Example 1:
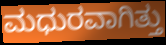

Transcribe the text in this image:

ಮಧುರವಾಗಿತ್ತು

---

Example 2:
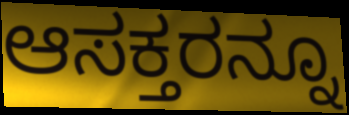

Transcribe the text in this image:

ಆಸಕ್ತರನ್ನೂ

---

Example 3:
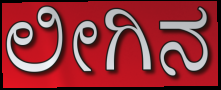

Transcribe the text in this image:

ಲೀಗಿನ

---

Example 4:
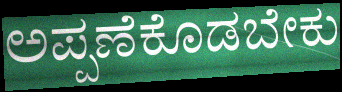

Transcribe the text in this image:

ಅಪ್ಪಣೆಕೊಡಬೇಕು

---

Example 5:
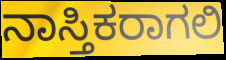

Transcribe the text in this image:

ನಾಸ್ತಿಕರಾಗಲಿ